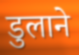
डुलाने